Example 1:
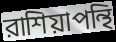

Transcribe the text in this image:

রাশিয়াপন্থি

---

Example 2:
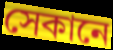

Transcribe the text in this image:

সেকানে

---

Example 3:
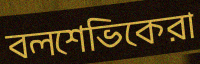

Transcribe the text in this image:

বলশেভিকেরা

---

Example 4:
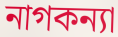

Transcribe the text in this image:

নাগকন্যা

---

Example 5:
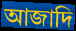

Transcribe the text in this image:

আজাদি